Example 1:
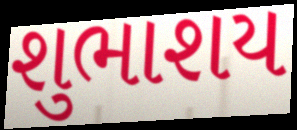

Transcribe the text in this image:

શુભાશય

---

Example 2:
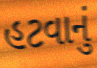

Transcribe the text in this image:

હટવાનું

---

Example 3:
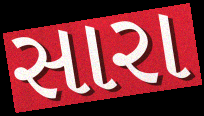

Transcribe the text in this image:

સારા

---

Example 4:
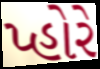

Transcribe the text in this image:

પ્હોરે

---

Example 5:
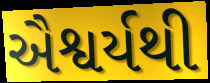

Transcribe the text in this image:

ઐશ્વર્યથી